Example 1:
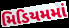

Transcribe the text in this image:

મિડિયમમાં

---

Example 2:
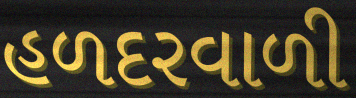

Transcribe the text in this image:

હળદરવાળી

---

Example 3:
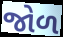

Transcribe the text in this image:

જોળ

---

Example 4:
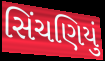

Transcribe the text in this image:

સિંચણિયું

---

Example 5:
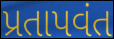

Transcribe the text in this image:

પ્રતાપવંત